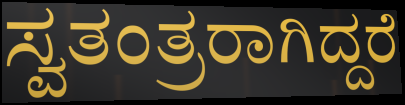
ಸ್ವತಂತ್ರರಾಗಿದ್ದರೆ